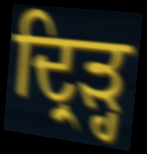
ਦ੍ਰਿੜ੍ਹ